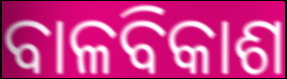
ବାଳବିକାଶ